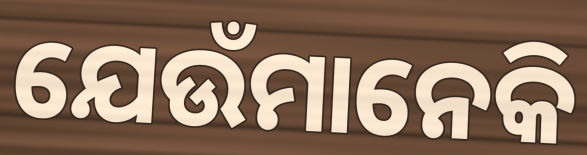
ଯେଉଁମାନେକି